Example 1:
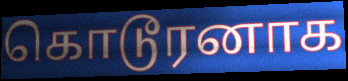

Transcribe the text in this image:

கொடூரனாக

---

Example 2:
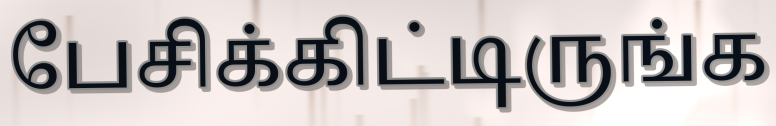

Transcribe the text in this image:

பேசிக்கிட்டிருங்க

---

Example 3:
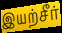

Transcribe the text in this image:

இயற்சீர்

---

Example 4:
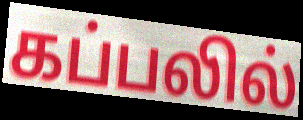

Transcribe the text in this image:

கப்பலில்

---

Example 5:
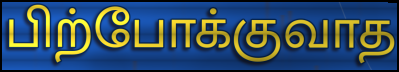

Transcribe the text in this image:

பிற்போக்குவாத